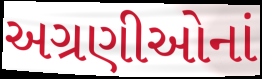
અગ્રણીઓનાં